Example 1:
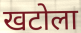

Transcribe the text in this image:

खटोला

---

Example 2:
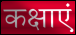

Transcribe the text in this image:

कक्षाएं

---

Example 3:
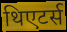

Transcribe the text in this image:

थिएटर्स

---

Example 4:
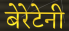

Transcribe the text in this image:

बेरेटेनी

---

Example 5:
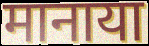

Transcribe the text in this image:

मानाया